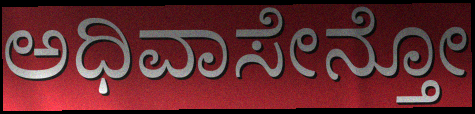
ಅಧಿವಾಸೇನ್ತೋ